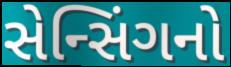
સેન્સિંગનો